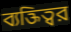
ব্যক্তিত্বর